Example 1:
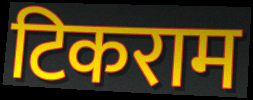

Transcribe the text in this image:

टिकराम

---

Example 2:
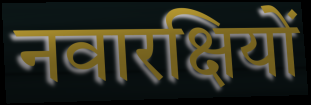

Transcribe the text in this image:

नवारक्षियों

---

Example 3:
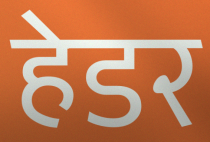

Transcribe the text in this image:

हेडर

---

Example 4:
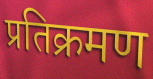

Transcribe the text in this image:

प्रतिक्रमण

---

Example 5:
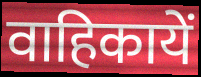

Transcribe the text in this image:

वाहिकायें